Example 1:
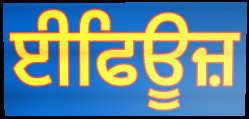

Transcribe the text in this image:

ਈਫਿਊਜ਼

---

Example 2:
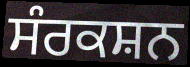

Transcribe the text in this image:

ਸੰਰਕਸ਼ਨ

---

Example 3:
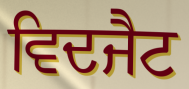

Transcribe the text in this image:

ਵਿਦਜੈਟ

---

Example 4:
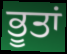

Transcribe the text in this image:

ਭੂਤਾਂ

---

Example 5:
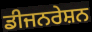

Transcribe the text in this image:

ਡੀਜਨਰੇਸ਼ਨ